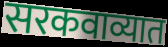
सरकवाव्यात